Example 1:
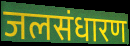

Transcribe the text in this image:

जलसंधारण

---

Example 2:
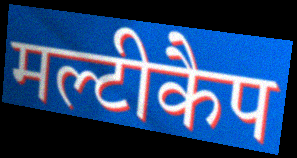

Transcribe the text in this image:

मल्टीकैप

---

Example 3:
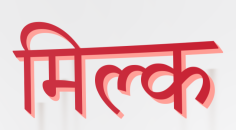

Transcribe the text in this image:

मिल्क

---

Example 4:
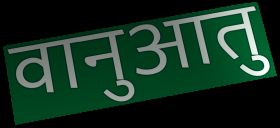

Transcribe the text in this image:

वानुआतु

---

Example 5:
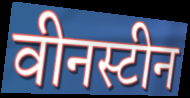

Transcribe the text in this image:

वीनस्टीन